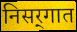
निसर्गात